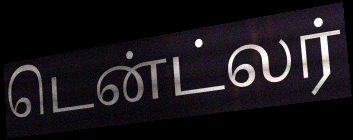
டென்ட்லர்